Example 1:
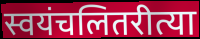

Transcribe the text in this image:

स्वयंचलितरीत्या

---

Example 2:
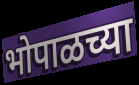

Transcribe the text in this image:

भोपाळच्या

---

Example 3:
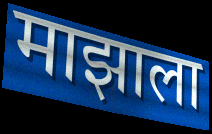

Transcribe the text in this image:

माझाला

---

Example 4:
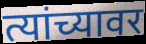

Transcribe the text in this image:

त्यांच्यावर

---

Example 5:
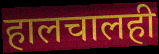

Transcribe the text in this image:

हालचालही